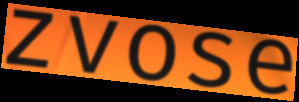
zvose